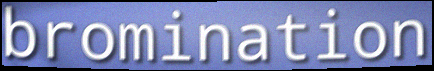
bromination